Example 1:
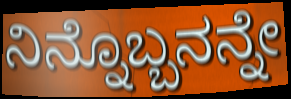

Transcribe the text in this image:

ನಿನ್ನೊಬ್ಬನನ್ನೇ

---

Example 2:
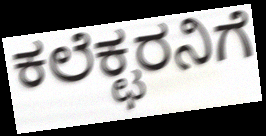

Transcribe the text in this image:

ಕಲೆಕ್ಟರನಿಗೆ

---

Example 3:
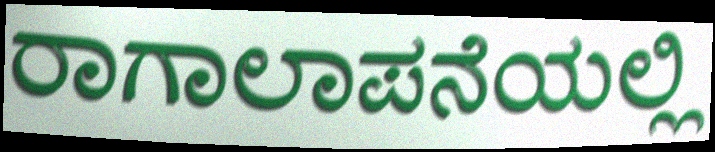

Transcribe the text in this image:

ರಾಗಾಲಾಪನೆಯಲ್ಲಿ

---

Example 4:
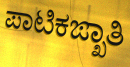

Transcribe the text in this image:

ಪಾಟಿಕಙ್ಖಾತಿ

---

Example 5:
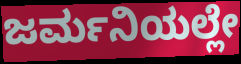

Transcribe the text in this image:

ಜರ್ಮನಿಯಲ್ಲೇ